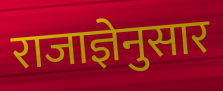
राजाज्ञेनुसार